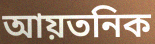
আয়তনিক